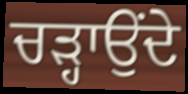
ਚੜ੍ਹਾਉਂਦੇ